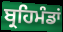
ਬ੍ਰਹਿਮੰਡਾਂ